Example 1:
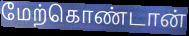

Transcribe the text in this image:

மேற்கொண்டான்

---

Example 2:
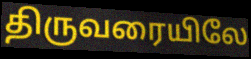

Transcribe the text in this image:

திருவரையிலே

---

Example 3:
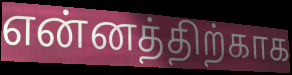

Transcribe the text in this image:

என்னத்திற்காக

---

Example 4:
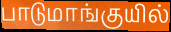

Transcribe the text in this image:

பாடுமாங்குயில்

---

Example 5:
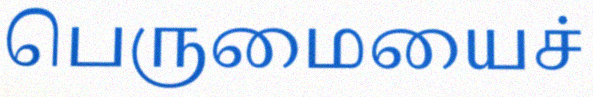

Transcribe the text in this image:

பெருமையைச்